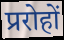
प्ररोहों